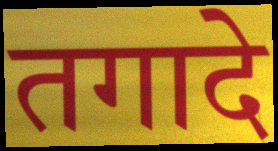
तगादे